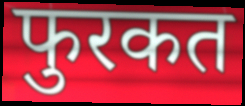
फुरकत